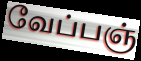
வேப்பஞ்